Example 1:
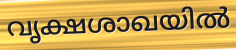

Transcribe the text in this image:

വൃക്ഷശാഖയിൽ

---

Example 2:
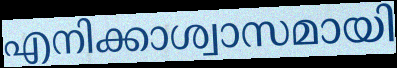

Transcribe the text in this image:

എനിക്കാശ്വാസമായി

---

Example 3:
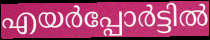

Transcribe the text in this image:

എയർപ്പോർട്ടിൽ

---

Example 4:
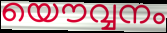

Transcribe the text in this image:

യൌവ്വനം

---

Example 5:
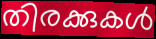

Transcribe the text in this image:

തിരക്കുകൾ